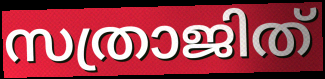
സത്രാജിത്